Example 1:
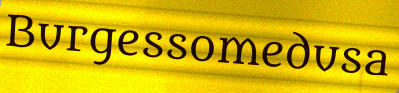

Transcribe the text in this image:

Burgessomedusa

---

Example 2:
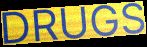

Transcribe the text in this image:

DRUGS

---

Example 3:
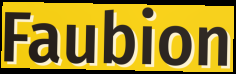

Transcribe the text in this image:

Faubion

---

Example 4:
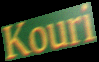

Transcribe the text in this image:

Kouri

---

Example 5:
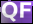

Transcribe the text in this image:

QF